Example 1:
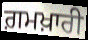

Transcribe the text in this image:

ਗ਼ਮਖ਼ਾਰੀ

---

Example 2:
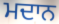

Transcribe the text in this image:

ਮਦਾਨ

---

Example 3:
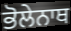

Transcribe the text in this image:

ਭੋਲੇਨਾਥ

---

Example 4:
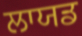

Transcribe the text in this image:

ਲਾਯਡ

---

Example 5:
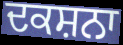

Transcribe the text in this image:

ਦਕਸ਼ਨਾ